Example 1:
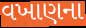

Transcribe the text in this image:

વખાણના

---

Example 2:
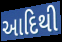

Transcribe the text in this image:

આદિથી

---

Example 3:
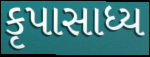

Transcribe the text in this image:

કૃપાસાધ્ય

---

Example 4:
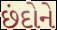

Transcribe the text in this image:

છંદોને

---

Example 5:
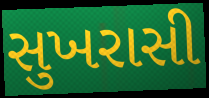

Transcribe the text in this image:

સુખરાસી